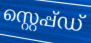
സ്റ്റെപ്പ്ഡ്